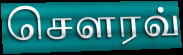
சௌரவ்